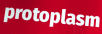
protoplasm